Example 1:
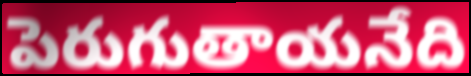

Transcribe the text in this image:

పెరుగుతాయనేది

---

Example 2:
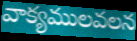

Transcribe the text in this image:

వాక్యములవలన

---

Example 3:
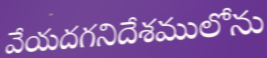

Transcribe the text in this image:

వేయదగనిదేశములోను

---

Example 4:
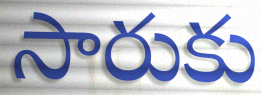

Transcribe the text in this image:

సారుకు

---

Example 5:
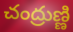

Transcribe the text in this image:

చంద్రుణ్ణి